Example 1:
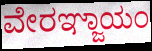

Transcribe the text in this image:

ವೇರಞ್ಜಾಯಂ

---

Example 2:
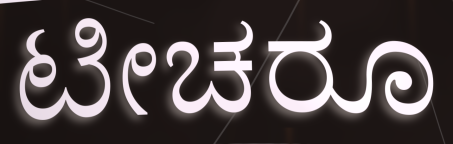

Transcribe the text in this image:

ಟೀಚರೂ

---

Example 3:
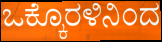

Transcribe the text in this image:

ಒಕ್ಕೊರಳಿನಿಂದ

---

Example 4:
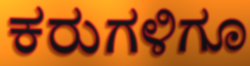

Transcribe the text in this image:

ಕರುಗಳಿಗೂ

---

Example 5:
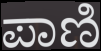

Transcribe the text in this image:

ಪಾಣಿ